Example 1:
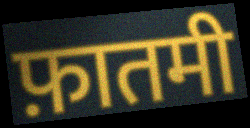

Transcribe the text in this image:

फ़ातमी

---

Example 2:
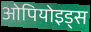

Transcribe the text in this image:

ओपियोइड्स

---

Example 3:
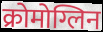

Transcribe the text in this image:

क्रोमोग्लिन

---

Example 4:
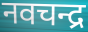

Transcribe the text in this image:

नवचन्द्र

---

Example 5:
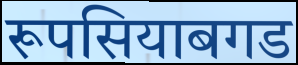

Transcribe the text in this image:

रूपसियाबगड